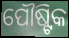
ପୌଷ୍ଟିକ